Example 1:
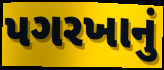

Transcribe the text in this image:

પગરખાનું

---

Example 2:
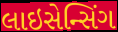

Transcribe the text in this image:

લાઇસેન્સિંગ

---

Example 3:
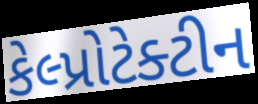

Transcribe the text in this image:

કેલ્પ્રોટેક્ટીન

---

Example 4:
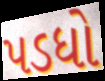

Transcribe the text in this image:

પડધો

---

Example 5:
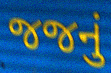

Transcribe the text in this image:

જજનું